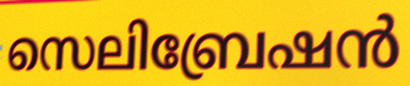
സെലിബ്രേഷൻ